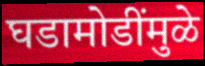
घडामोडींमुळे